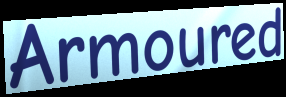
Armoured